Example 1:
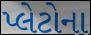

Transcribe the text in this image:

પ્લેટોના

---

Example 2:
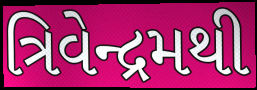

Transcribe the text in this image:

ત્રિવેન્દ્રમથી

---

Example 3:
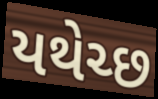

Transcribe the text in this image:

યથેચ્છ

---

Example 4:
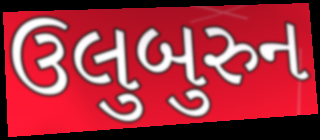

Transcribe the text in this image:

ઉલુબુરુન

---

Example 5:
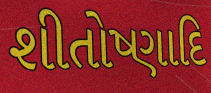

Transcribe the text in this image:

શીતોષ્ણાદિ